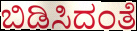
ಬಿಡಿಸಿದಂತೆ